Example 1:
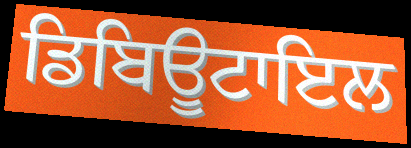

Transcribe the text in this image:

ਡਿਬਿਊਟਾਇਲ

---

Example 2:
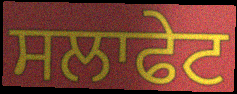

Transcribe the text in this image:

ਸਲਾਫੇਟ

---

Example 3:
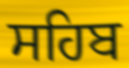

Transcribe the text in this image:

ਸਹਿਬ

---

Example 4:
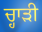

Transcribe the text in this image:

ਚ੍ਹਾੜੀ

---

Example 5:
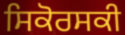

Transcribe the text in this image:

ਸਿਕੋਰਸਕੀ